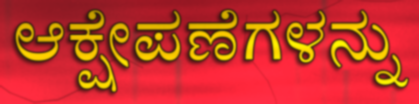
ಆಕ್ಷೇಪಣೆಗಳನ್ನು